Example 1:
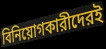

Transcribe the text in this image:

বিনিয়োগকারীদেরই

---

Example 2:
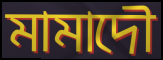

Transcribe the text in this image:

মামাদৌ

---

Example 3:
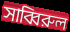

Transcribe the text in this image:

সাব্বিরুল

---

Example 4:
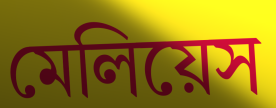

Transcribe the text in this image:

মেলিয়েস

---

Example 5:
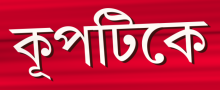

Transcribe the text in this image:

কূপটিকে